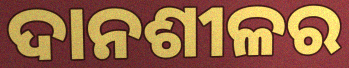
ଦାନଶୀଳର